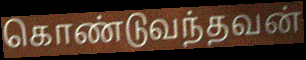
கொண்டுவந்தவன்